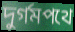
দুর্গমপথে